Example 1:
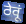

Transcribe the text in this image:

ठेवूं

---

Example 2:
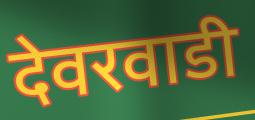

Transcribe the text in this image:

देवरवाडी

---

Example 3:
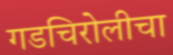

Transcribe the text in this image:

गडचिरोलीचा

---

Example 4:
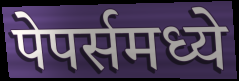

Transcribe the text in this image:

पेपर्समध्ये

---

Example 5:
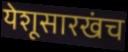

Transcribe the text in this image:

येशूसारखंच